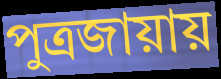
পুত্রজায়ায়